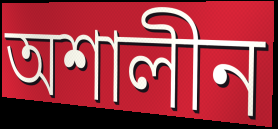
অশালীন